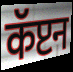
कॅप्टन